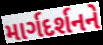
માર્ગદર્શનને